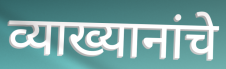
व्याख्यानांचे